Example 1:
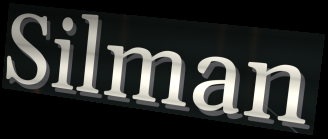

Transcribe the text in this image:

Silman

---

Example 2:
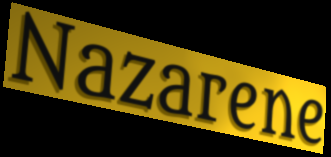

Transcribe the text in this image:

Nazarene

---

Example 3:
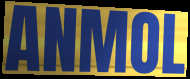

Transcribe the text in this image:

ANMOL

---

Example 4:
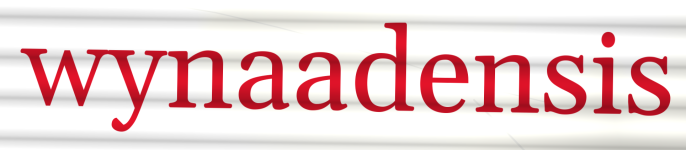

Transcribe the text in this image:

wynaadensis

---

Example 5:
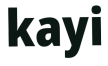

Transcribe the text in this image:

kayi